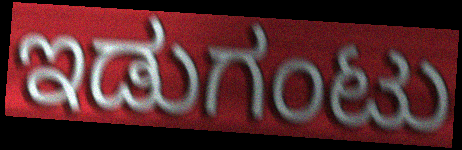
ಇಡುಗಂಟು